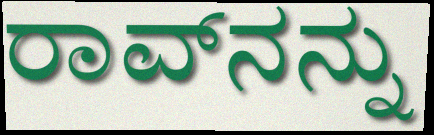
ರಾವ್‌ನನ್ನು